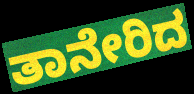
ತಾನೇರಿದ